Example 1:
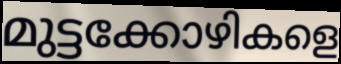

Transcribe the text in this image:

മുട്ടക്കോഴികളെ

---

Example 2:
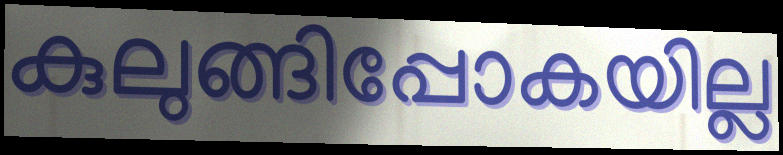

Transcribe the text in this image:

കുലുങ്ങിപ്പോകയില്ല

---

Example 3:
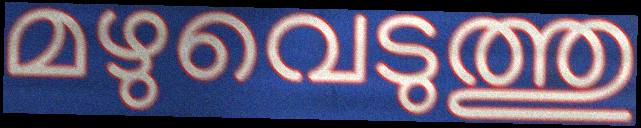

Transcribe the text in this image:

മഴുവെടുത്തു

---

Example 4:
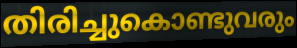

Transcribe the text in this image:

തിരിച്ചുകൊണ്ടുവരും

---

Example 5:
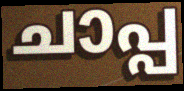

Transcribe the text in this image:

ചാപ്പ